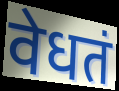
वेधतं